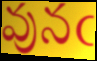
వునఁ